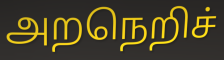
அறநெறிச்